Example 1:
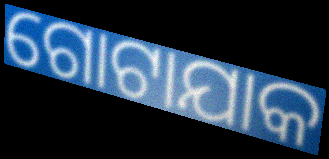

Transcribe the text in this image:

ଗୋଟାଯାକ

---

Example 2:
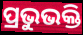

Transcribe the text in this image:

ପ୍ରଭୁଭକ୍ତି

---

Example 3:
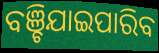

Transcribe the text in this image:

ବଞ୍ଚିଯାଇପାରିବ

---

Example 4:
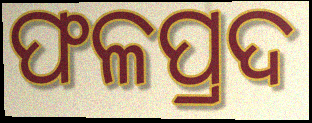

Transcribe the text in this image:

ଫଳପ୍ରଦ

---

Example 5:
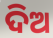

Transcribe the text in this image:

ଦିଅ